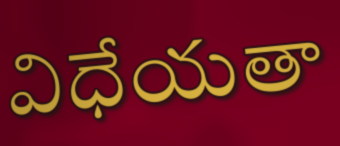
విధేయతా